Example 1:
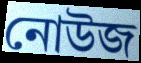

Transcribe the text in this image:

নোউজ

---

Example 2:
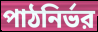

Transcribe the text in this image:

পাঠনির্ভর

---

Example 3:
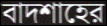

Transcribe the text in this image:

বাদশাহের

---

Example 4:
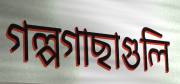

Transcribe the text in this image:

গল্পগাছাগুলি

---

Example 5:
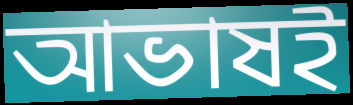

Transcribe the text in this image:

আভাষই